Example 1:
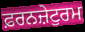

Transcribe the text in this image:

ਫ਼ਰਨਜ਼ੇਟੁਰਮ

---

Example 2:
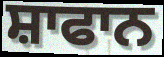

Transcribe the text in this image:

ਸ਼ਾਫਾਨ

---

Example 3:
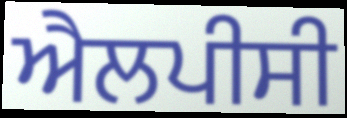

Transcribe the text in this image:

ਐਲਪੀਸੀ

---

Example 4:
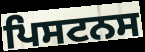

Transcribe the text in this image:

ਪਿਸਟਨਸ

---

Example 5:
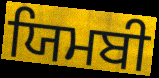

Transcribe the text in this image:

ਯਿਮਬੀ